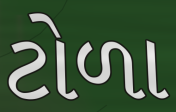
ટોળા